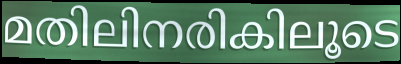
മതിലിനരികിലൂടെ